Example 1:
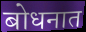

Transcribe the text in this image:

बोधनात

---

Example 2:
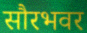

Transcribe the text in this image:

सौरभवर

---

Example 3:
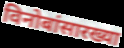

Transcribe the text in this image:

विनोबांसारख्या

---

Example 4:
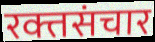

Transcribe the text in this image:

रक्तसंचार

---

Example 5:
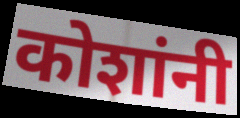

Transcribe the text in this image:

कोशांनी